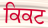
ਕਿਕਟ